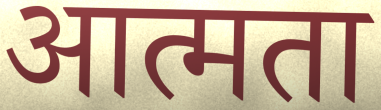
आत्मता